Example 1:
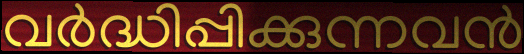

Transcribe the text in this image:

വർദ്ധിപ്പിക്കുന്നവൻ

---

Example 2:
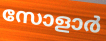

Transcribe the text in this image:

സോളാർ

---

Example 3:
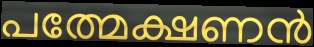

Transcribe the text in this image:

പത്മേക്ഷണൻ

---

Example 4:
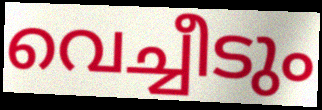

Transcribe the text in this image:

വെച്ചീടും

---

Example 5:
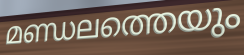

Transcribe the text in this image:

മണ്ഡലത്തെയും